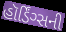
હૉર્ડિંગ્સની